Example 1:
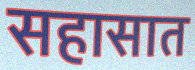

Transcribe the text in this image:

सहासात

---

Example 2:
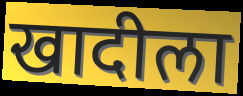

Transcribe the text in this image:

खादीला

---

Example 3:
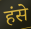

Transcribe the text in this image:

हंसे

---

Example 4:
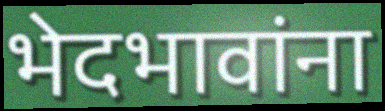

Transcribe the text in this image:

भेदभावांना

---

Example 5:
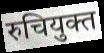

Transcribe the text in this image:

रुचियुक्त